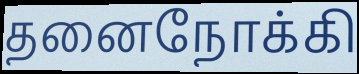
தனைநோக்கி